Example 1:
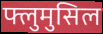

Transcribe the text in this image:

फ्लुमुसिल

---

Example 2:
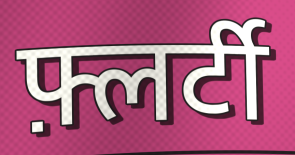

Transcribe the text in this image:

फ़्लर्टी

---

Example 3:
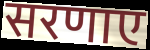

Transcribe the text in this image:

सरणाए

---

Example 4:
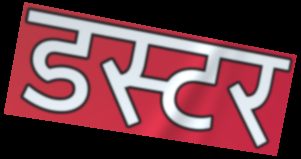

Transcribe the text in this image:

डस्टर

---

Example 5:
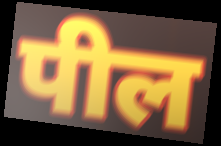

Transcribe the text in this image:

पील